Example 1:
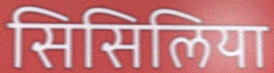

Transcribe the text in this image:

सिसिलिया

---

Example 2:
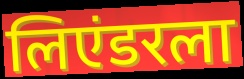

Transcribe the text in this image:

लिएंडरला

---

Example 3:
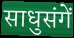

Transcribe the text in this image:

साधुसंगें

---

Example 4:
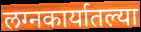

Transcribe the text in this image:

लग्नकार्यातल्या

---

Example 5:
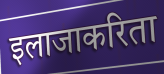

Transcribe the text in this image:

इलाजाकरिता